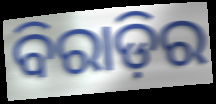
ବିରାଡ଼ିର